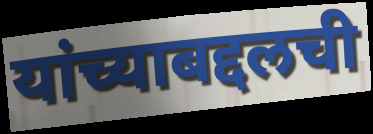
यांच्याबद्दलची